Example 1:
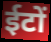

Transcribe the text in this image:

ईटों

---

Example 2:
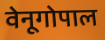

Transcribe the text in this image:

वेनूगोपाल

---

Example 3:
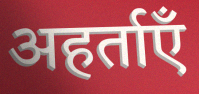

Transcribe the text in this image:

अहर्ताएँ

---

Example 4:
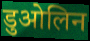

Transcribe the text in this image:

डुओलिन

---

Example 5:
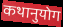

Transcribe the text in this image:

कथानुयोग